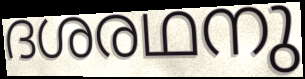
ദശരഥനു